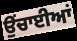
ਉਂਚਾਈਆਂ